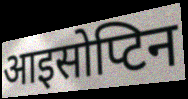
आइसोप्टिन